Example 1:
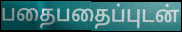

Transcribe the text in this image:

பதைபதைப்புடன்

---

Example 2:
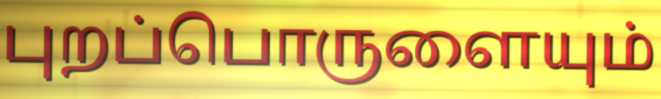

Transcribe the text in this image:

புறப்பொருளையும்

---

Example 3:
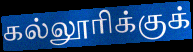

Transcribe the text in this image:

கல்லூரிக்குக்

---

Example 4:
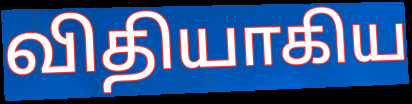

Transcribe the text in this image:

விதியாகிய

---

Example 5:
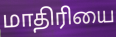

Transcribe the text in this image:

மாதிரியை